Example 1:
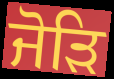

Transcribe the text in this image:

ਜੋੜਿ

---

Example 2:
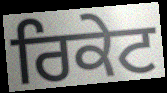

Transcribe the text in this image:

ਰਿਕੇਟ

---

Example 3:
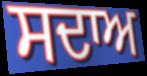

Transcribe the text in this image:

ਸਦਾਅ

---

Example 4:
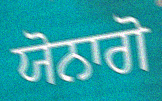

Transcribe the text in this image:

ਯੋਨਾਗੋ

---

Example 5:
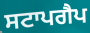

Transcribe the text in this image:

ਸਟਾਪਗੈਪ